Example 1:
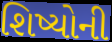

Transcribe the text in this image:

શિષ્યોની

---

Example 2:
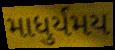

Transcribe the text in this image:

માધુર્યમય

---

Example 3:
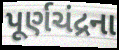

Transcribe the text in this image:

પૂર્ણચંદ્રના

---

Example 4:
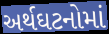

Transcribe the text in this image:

અર્થઘટનોમાં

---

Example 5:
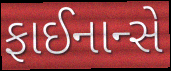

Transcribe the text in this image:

ફાઈનાન્સે